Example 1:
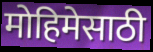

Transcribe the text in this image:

मोहिमेसाठी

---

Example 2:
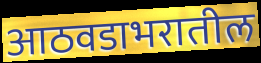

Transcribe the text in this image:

आठवडाभरातील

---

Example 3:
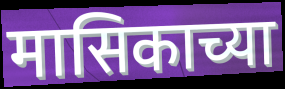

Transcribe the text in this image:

मासिकाच्या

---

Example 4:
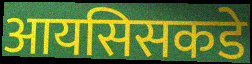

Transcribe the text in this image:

आयसिसकडे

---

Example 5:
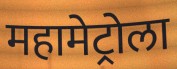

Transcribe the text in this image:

महामेट्रोला